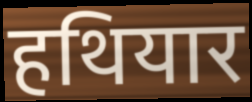
हथियार